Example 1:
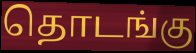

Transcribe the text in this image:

தொடங்கு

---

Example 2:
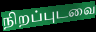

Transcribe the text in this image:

நிறப்புடவை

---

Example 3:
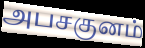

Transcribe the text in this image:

அபசகுனம்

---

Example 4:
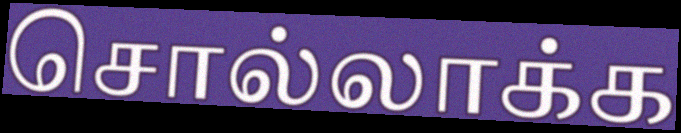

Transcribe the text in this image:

சொல்லாக்க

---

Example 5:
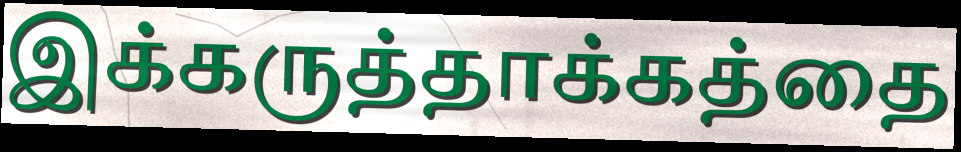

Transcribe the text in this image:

இக்கருத்தாக்கத்தை